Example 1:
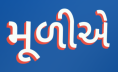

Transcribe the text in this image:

મૂળીએ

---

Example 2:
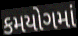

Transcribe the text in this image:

કમયોગમાં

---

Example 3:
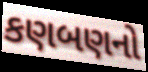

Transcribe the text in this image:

કણબણનો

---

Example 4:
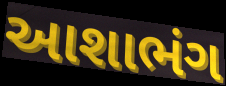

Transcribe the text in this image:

આશાભંગ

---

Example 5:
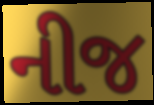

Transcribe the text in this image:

નીજ